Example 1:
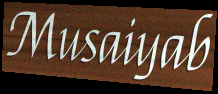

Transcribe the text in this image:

Musaiyab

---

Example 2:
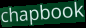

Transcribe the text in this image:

chapbook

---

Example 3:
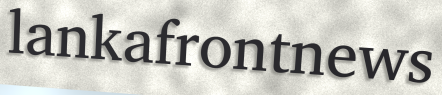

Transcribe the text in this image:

lankafrontnews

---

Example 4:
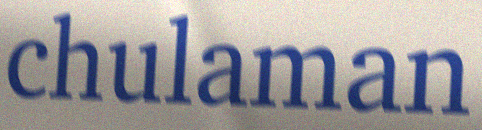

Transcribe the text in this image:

chulaman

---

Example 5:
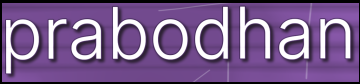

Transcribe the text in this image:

prabodhan